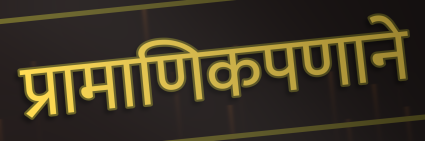
प्रामाणिकपणाने